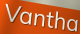
Vantha